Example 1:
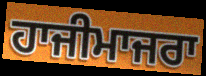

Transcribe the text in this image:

ਹਾਜੀਮਾਜਰਾ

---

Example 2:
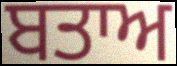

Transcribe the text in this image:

ਬਤਾਅ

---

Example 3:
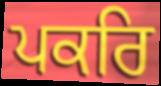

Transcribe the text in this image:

ਪਕਰਿ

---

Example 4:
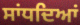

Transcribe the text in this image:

ਸਾਂਧਦਿਆਂ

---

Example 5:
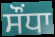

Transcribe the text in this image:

ਸੌਂਧਾ